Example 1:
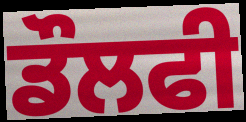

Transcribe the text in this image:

ਡੌਲਫੀ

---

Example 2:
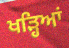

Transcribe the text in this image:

ਖੜ੍ਹਿਆਂ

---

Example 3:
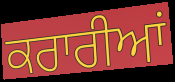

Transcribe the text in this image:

ਕਰਾਰੀਆਂ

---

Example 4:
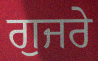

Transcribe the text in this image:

ਗੁਜਰੇ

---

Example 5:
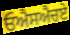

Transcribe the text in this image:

ਓਐਸਐਚਏ